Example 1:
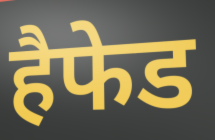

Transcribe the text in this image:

हैफेड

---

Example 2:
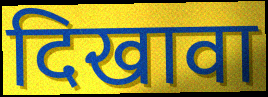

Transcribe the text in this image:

दिखावा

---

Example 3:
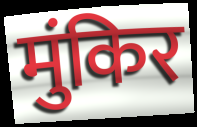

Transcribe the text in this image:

मुंकिर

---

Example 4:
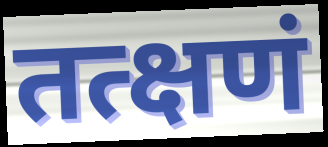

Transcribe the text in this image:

तत्क्षणं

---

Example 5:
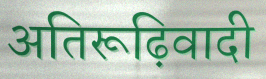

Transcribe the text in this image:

अतिरूढ़िवादी